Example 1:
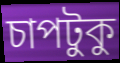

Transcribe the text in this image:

চাপটুকু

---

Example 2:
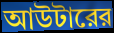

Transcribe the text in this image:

আউটারের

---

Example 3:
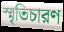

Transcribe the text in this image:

স্মৃতিচারণ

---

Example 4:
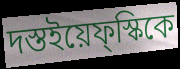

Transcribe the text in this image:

দস্তইয়েফ্স্কিকে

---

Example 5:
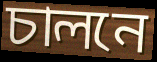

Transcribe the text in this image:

চালনে